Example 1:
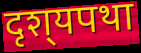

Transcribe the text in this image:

दृश्यपथा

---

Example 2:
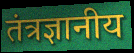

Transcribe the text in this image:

तंत्रज्ञानीय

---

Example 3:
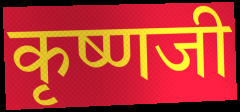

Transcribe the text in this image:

कृष्णजी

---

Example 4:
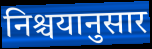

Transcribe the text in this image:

निश्चयानुसार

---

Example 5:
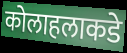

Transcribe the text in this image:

कोलाहलाकडे